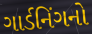
ગાર્ડનિંગનો